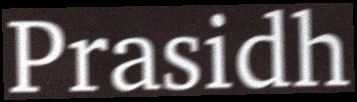
Prasidh